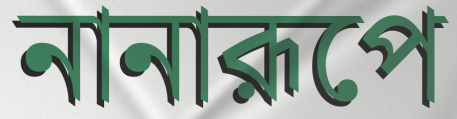
নানারূপে